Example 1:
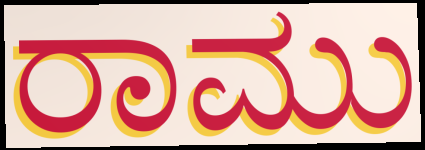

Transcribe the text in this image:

ರಾಮು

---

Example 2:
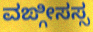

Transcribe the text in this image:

ವಙ್ಗೀಸಸ್ಸ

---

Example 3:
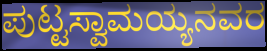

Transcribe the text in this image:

ಪುಟ್ಟಸ್ವಾಮಯ್ಯನವರ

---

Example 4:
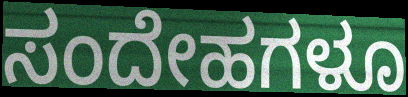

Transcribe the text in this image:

ಸಂದೇಹಗಳೂ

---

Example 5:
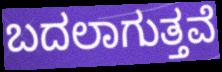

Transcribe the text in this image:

ಬದಲಾಗುತ್ತವೆ